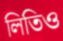
লিতিও